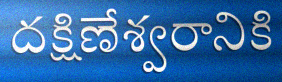
దక్షిణేశ్వరానికి